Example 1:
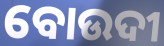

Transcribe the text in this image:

ବୋଉଦୀ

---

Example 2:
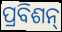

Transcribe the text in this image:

ପ୍ରବିଶନ୍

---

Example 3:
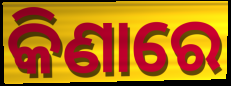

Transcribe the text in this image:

କିଣାରେ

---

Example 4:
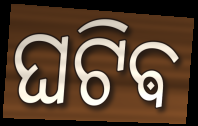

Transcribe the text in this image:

ଘଟିଵ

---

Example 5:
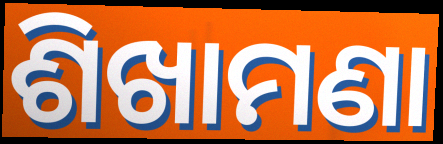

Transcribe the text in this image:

ଶିଖାମଣା